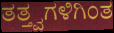
ತತ್ತ್ವಗಳಿಗಿಂತ